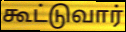
கூட்டுவார்